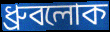
ধ্রুবলোক